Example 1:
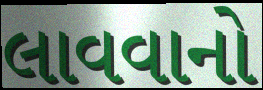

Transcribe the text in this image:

લાવવાનો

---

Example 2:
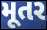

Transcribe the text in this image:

મૂતર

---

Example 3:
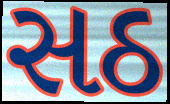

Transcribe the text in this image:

સઠ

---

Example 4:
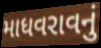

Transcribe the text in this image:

માધવરાવનું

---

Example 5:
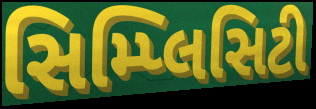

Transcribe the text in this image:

સિમ્પ્લિસિટી